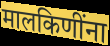
मालकिणींना